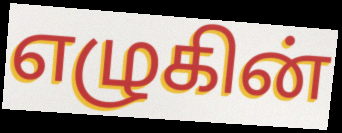
எழுகின்